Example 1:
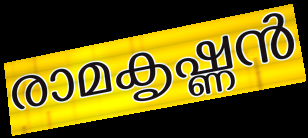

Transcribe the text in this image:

രാമകൃഷ്ണൻ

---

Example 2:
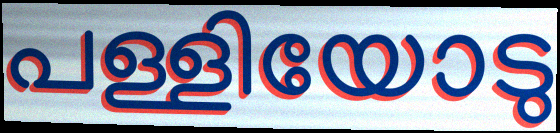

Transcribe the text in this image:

പള്ളിയോടു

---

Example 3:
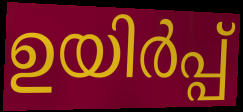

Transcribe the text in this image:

ഉയിർപ്പ്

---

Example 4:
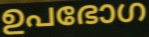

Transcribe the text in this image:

ഉപഭോഗ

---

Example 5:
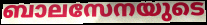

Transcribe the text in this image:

ബാലസേനയുടെ